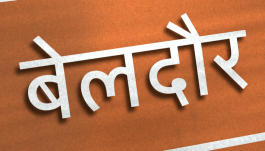
बेलदौर